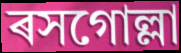
ৰসগোল্লা